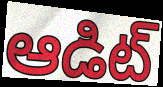
ఆడిట్